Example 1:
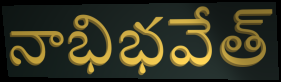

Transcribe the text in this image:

నాభిభవేత్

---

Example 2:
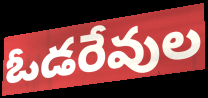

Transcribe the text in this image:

ఓడరేవుల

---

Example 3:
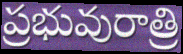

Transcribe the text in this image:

ప్రభువురాత్రి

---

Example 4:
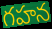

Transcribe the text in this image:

గహన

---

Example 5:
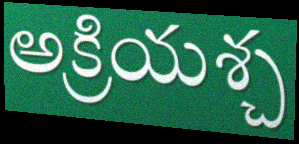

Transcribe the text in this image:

అక్రియశ్చ